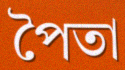
পৈতা